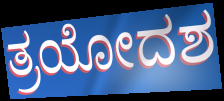
ತ್ರಯೋದಶ